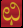
ಛಿ